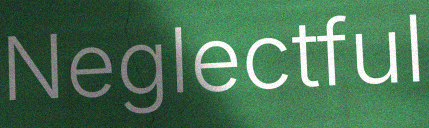
Neglectful